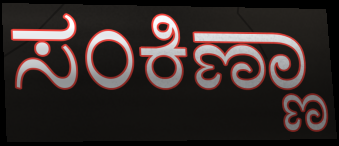
ಸಂಕಿಣ್ಣಾ